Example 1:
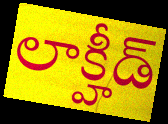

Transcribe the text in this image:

లాక్హీడ్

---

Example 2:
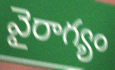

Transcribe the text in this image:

వైరాగ్యం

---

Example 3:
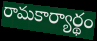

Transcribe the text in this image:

రామకార్యార్థం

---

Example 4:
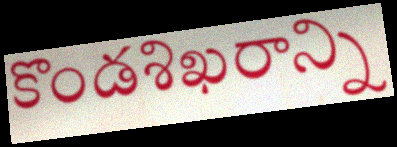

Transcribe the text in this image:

కొండశిఖరాన్ని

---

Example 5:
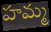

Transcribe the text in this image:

హమ్మ